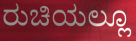
ರುಚಿಯಲ್ಲೂ